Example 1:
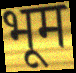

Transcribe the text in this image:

भूम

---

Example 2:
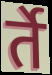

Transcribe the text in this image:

र्ते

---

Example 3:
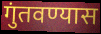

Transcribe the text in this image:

गुंतवण्यास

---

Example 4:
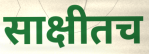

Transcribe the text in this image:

साक्षीतच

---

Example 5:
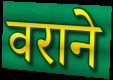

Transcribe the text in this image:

वराने